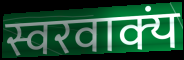
स्वरवाक्यं